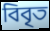
বিবৃত